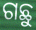
ଗଛୁ